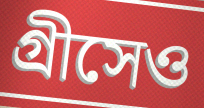
গ্রীসেও